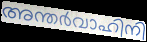
അന്തർവാഹിനി